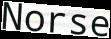
Norse